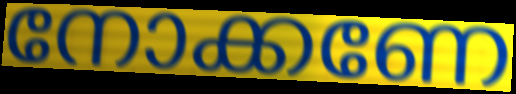
നോക്കണേ